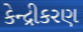
કેન્દ્રીકરણ